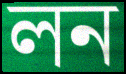
লন